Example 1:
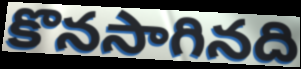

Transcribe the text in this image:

కొనసాగినది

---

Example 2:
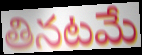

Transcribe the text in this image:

తినటమే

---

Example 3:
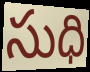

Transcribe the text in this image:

సుధి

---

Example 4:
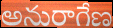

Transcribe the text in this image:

అనురాగేణ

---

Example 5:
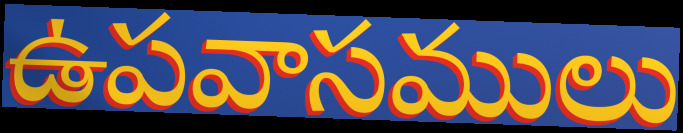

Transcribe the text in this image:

ఉపవాసములు